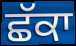
ਛੱਕਾ